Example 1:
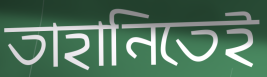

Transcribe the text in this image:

তাহানিতেই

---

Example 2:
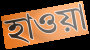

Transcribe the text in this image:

হাওয়া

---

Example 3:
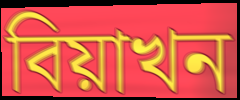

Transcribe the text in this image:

বিয়াখন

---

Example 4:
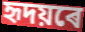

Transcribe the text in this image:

হৃদয়ৰে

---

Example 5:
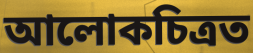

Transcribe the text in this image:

আলোকচিত্ৰত